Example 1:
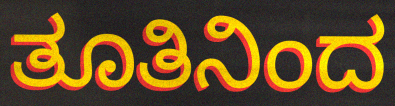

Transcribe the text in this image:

ತೂತಿನಿಂದ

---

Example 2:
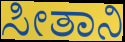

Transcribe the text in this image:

ಸೀತಾನಿ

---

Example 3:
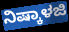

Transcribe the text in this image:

ನಿಷ್ಕಾಳಜಿ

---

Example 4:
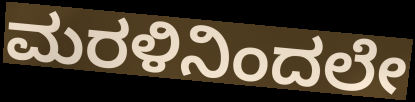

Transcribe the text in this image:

ಮರಳಿನಿಂದಲೇ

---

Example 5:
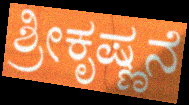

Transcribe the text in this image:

ಶ್ರೀಕೃಷ್ಣನೆ